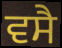
ਵਸੈ